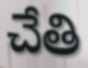
చేతి